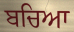
ਬਚਿਆ